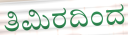
ತಿಮಿರದಿಂದ